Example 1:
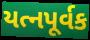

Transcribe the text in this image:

યત્નપૂર્વક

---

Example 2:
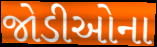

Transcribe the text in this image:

જોડીઓના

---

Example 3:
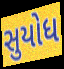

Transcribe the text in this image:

સુયોધ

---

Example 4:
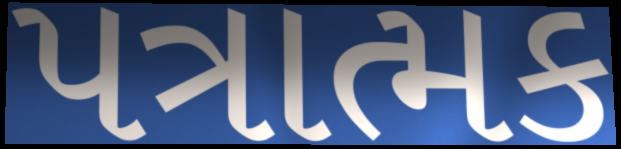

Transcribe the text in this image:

પત્રાત્મક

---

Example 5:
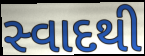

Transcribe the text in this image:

સ્વાદથી